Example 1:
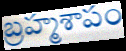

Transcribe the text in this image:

బ్రహ్మశాపం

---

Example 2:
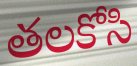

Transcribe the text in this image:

తలకోసి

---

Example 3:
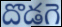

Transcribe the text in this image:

దొడగె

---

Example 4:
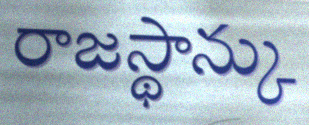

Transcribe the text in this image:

రాజస్థాన్కు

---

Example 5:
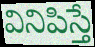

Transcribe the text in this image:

వినిపిస్తే